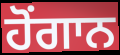
ਹੋਂਗਾਨ